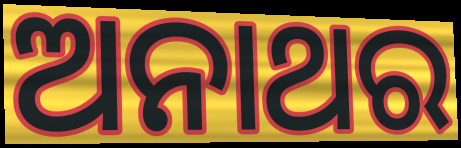
ଅନାଥର